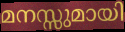
മനസ്സുമായി